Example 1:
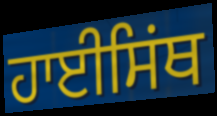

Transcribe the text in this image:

ਹਾਈਸਿਂਥ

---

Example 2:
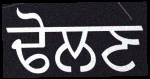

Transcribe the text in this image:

ਢੋਲਣ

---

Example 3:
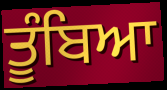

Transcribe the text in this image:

ਤੂੰਬਿਆ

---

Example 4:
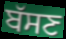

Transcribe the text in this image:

ਬੱਸਣ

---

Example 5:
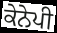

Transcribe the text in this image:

ਕੇਨੇਪੀ